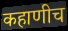
कहाणीच